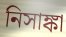
নিসাঙ্কা